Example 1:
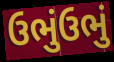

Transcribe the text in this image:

ઉભુંઉભું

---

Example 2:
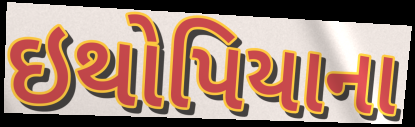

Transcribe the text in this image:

ઇથોપિયાના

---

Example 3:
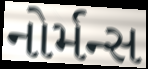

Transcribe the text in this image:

નોર્મન્સ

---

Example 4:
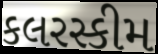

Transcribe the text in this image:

કલરસ્કીમ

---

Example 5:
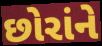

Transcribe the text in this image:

છોરાંને